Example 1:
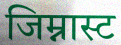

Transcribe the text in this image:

जिम्नास्ट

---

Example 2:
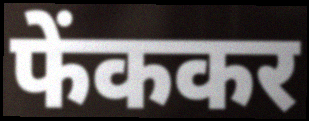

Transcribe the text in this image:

फेंककर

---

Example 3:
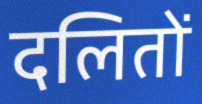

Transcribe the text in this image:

दलितों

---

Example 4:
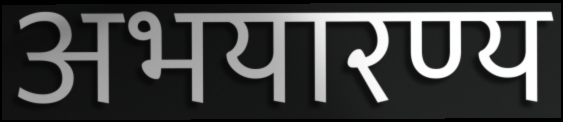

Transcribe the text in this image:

अभयारण्य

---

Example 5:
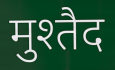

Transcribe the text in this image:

मुश्तैद